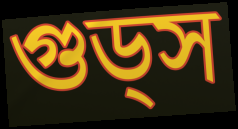
গুড্স